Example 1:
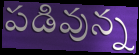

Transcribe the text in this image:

పడివున్న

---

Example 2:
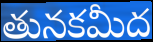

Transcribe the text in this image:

తునకమీద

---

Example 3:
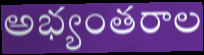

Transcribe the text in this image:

అభ్యంతరాల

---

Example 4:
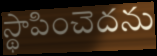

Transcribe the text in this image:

స్థాపించెదను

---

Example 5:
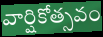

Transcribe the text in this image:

వార్షికోత్సవం